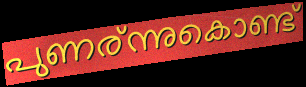
പുണര്ന്നുകൊണ്ട്